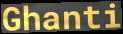
Ghanti